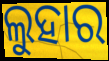
ଲୁହାର